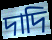
দাদি